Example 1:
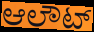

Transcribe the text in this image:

ಆಲೌಟ್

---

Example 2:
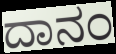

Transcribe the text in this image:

ದಾನಂ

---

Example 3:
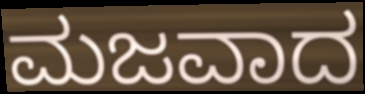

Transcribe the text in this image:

ಮಜವಾದ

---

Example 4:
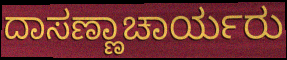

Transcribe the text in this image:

ದಾಸಣ್ಣಾಚಾರ್ಯರು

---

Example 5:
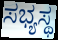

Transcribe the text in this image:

ಸಭ್ಯಸ್ಥ